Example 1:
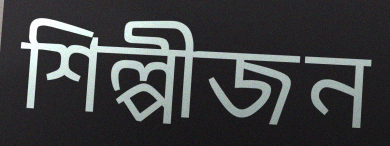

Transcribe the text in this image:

শিল্পীজন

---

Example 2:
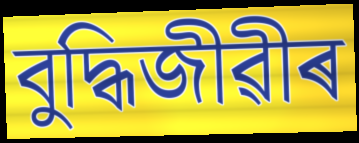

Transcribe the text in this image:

বুদ্ধিজীৱীৰ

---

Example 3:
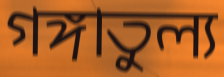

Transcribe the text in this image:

গঙ্গাতুল্য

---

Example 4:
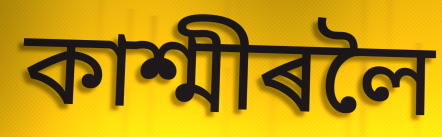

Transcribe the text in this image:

কাশ্মীৰলৈ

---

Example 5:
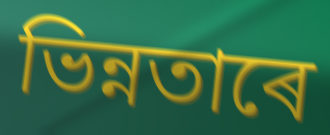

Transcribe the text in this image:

ভিন্নতাৰে